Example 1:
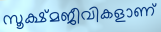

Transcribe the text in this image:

സൂക്ഷ്മജീവികളാണ്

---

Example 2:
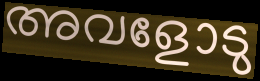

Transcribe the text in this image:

അവളോടു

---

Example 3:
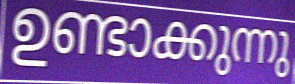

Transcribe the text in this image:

ഉണ്ടാക്കുന്നു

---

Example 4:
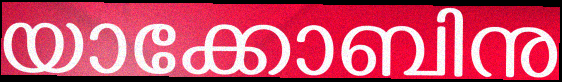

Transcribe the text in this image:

യാക്കോബിനു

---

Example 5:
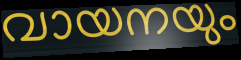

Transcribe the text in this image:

വായനയും